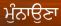
ਮੁੰਨਾਉਣਾ